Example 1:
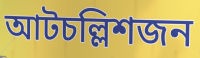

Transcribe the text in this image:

আটচল্লিশজন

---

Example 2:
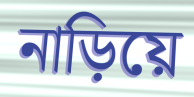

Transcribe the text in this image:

নাড়িয়ে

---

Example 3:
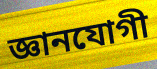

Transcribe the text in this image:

জ্ঞানযোগী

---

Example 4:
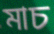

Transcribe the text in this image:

মাচ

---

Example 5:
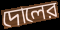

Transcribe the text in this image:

দোলের